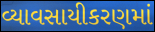
વ્યાવસાયીકરણમાં